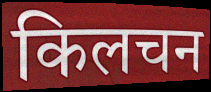
किलचन